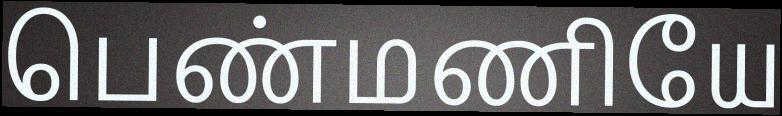
பெண்மணியே